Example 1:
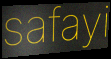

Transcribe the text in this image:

safayi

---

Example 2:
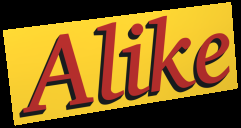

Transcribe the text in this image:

Alike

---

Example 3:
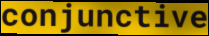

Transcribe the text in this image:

conjunctive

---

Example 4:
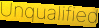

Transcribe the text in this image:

Unqualified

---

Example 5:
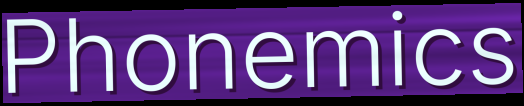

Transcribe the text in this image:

Phonemics